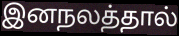
இனநலத்தால்